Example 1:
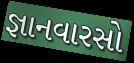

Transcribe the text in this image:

જ્ઞાનવારસો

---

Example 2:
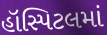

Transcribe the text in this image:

હૉસ્પિટલમાં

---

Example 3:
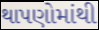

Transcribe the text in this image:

થાપણોમાંથી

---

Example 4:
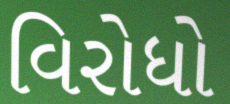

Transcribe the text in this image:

વિરોધો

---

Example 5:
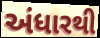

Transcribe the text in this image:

અંધારથી